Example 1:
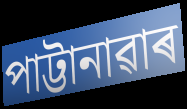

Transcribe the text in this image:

পাট্টানাৱাৰ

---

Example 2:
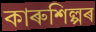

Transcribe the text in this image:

কাৰুশিল্পৰ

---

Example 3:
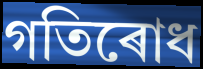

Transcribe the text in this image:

গতিৰোধ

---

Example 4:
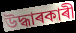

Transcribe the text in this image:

উদ্ধাৰকাৰী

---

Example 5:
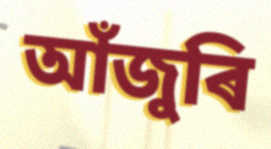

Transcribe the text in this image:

আঁজুৰি